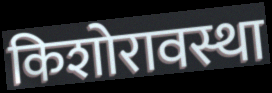
किशोरावस्था